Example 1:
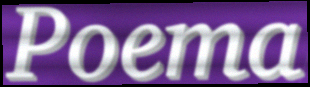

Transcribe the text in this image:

Poema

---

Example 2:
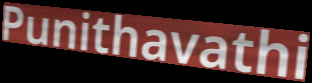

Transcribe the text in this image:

Punithavathi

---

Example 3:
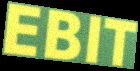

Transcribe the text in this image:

EBIT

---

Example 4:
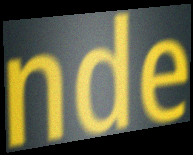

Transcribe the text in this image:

nde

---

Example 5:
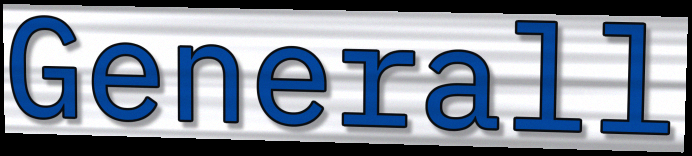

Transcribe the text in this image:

Generall